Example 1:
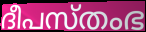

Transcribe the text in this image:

ദീപസ്തംഭ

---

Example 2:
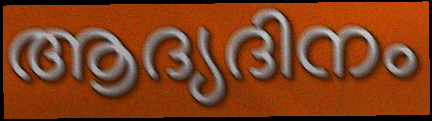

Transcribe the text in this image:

ആദ്യദിനം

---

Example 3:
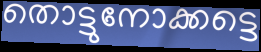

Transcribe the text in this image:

തൊട്ടുനോക്കട്ടെ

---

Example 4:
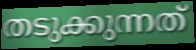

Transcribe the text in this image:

തടുക്കുന്നത്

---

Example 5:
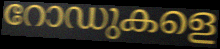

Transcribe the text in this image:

റോഡുകളെ